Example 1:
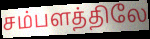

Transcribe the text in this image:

சம்பளத்திலே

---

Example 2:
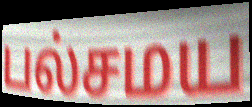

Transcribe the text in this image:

பல்சமய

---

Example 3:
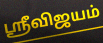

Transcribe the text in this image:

ஸ்ரீவிஜயம்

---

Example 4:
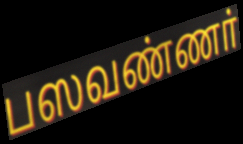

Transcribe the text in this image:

பஸவண்ணர்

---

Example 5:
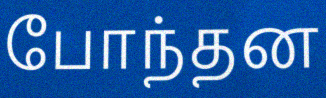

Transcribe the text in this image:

போந்தன